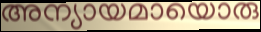
അന്യായമായൊരു